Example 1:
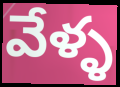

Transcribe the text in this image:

వేళ్ళ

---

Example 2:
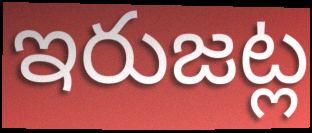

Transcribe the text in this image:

ఇరుజట్ల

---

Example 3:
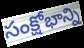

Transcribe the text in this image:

సంక్షోభాన్ని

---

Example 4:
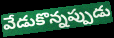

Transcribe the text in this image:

వేడుకొన్నప్పుడు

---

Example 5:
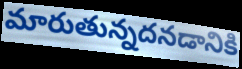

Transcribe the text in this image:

మారుతున్నదనడానికి